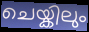
ചെയ്കിലും